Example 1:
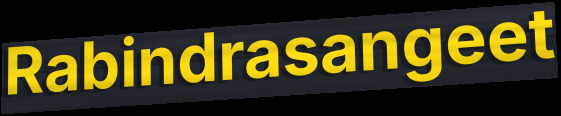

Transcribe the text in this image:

Rabindrasangeet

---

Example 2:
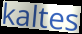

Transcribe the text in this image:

kaltes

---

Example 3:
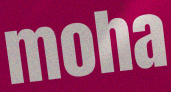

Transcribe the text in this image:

moha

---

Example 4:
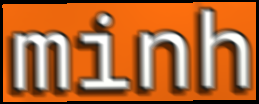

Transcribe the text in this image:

minh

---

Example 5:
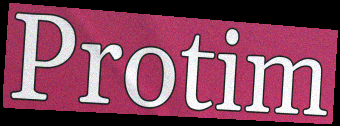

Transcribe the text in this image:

Protim